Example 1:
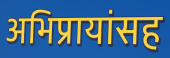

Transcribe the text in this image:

अभिप्रायांसह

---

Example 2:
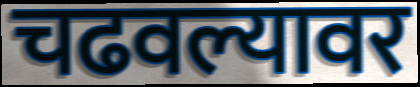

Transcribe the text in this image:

चढवल्यावर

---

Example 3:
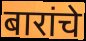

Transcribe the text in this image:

बारांचे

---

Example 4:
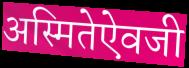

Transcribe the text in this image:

अस्मितेऐवजी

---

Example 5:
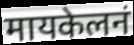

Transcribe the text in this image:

मायकेलनं